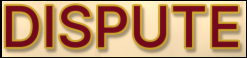
DISPUTE